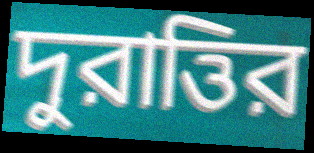
দুরাত্তির